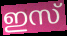
ഇസ്